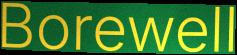
Borewell